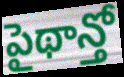
పైథాన్తో